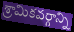
శ్రామికవర్గాన్ని